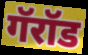
गॅरॉड